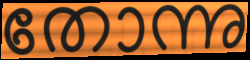
തോന്നു